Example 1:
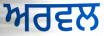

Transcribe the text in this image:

ਅਰਵਲ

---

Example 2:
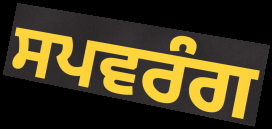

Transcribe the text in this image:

ਸਪਵਰੰਗ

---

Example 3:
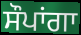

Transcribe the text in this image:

ਸੌਪਾਂਗਾ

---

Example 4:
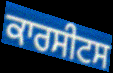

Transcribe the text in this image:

ਕਾਰਸੀਟਸ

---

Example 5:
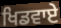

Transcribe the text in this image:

ਖਿਡਵਾਏ